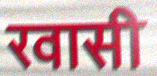
रवासी